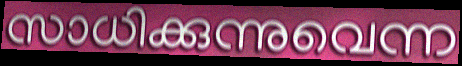
സാധിക്കുന്നുവെന്ന